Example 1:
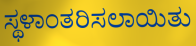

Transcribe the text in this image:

ಸ್ಥಳಾಂತರಿಸಲಾಯಿತು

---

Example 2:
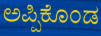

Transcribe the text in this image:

ಅಪ್ಪಿಕೊಂಡ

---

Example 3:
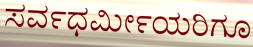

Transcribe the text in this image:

ಸರ್ವಧರ್ಮೀಯರಿಗೂ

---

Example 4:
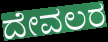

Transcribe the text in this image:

ದೇವಲರ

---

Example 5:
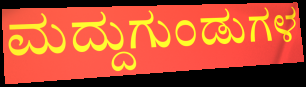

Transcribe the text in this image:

ಮದ್ದುಗುಂಡುಗಳ